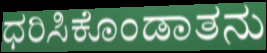
ಧರಿಸಿಕೊಂಡಾತನು